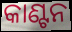
କାଣ୍ଟନ